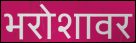
भरोशावर